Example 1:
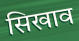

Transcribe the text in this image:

सिखाव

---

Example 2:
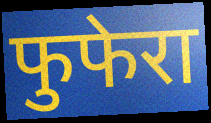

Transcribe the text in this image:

फुफेरा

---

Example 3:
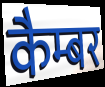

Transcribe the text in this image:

कैम्बर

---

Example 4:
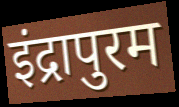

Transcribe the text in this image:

इंद्रापुरम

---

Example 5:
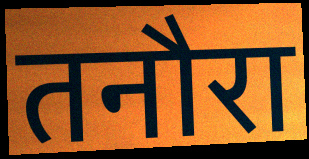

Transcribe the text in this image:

तनौरा